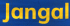
Jangal